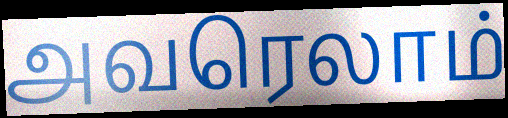
அவரெலாம்